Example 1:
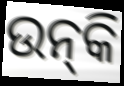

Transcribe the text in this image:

ଉନ୍‌କି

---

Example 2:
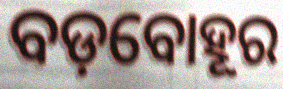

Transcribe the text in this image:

ବଡ଼ବୋହୂର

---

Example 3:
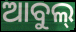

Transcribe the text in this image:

ଆବୁଲ୍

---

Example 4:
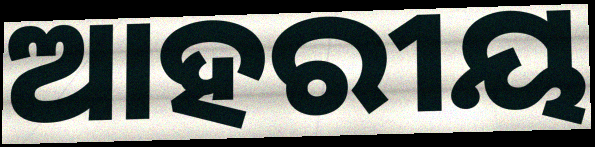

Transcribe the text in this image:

ଆହରୀୟ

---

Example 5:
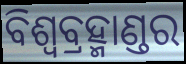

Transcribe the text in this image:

ବିଶ୍ୱବ୍ରହ୍ମାଣ୍ଡର